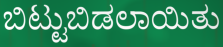
ಬಿಟ್ಟುಬಿಡಲಾಯಿತು